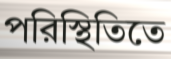
পরিস্থিতিতে